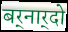
बर्नार्दो